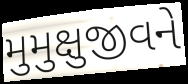
મુમુક્ષુજીવને